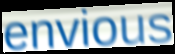
envious